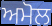
ਅਮੋਲ